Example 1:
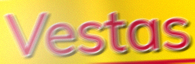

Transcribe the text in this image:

Vestas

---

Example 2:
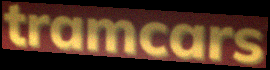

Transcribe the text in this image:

tramcars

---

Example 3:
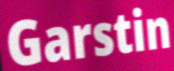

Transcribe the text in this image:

Garstin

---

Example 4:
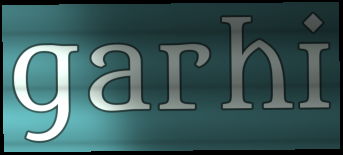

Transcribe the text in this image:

garhi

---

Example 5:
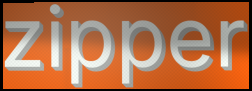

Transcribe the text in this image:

zipper